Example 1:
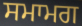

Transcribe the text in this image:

ਸਮਾਮਗ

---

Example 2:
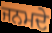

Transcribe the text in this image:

ਜਨਮਦੇ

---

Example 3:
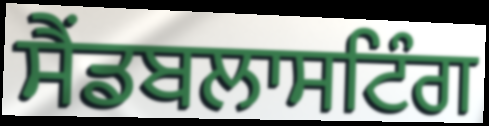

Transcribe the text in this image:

ਸੈਂਡਬਲਾਸਟਿੰਗ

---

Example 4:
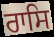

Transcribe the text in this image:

ਰਾਸਿ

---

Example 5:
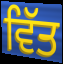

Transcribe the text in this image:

ਵਿੱਤ